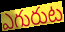
ఎగురుట